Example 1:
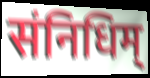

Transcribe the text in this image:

संनिधिम्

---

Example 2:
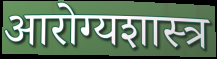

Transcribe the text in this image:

आरोग्यशास्त्र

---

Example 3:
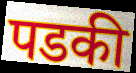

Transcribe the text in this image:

पडकी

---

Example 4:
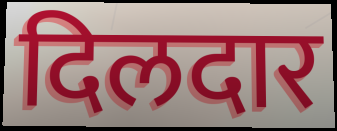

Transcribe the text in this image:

दिलदार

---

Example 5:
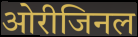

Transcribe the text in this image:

ओरीजिनल